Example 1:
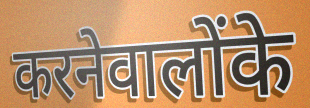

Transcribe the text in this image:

करनेवालोंके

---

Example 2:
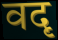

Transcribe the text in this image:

वदृ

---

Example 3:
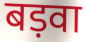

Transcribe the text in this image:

बड़वा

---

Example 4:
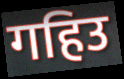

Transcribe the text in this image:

गहिउ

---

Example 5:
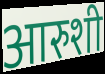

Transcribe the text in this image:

आरुशी